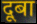
दूबा